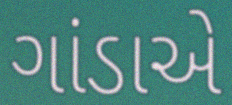
ગાંડાએ